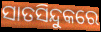
ସାତସିନ୍ଦୁକରେ